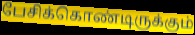
பேசிக்கொண்டிருக்கும்